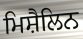
ਮਿਸ਼ੈਲਿਨ